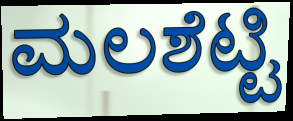
ಮಲಶೆಟ್ಟಿ